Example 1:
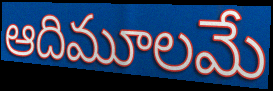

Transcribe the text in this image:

ఆదిమూలమే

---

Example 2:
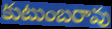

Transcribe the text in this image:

కుటుంబరావు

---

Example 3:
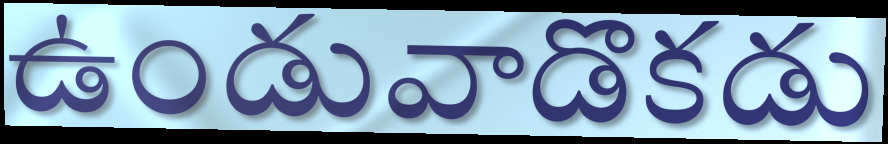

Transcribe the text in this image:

ఉండువాడొకడు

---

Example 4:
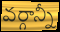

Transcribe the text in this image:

వర్గాన్నీ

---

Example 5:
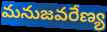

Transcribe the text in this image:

మనుజవరేణ్య